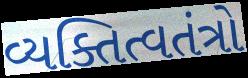
વ્યક્તિત્વતંત્રો